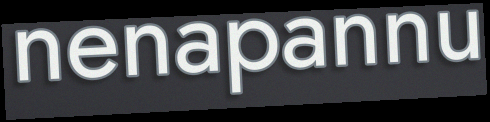
nenapannu